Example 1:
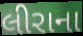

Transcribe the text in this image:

લીરાના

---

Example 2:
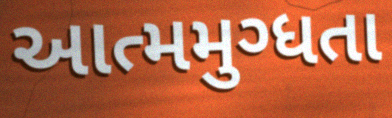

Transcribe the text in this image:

આત્મમુગ્ધતા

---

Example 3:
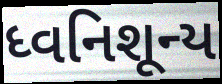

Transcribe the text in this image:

ધ્વનિશૂન્ય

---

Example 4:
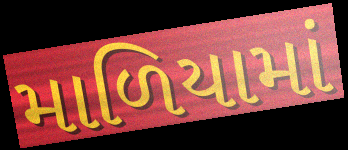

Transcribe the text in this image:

માળિયામાં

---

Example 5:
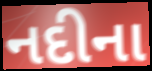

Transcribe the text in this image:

નદીના